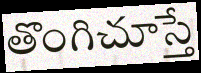
తొంగిచూస్తే